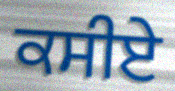
ਕਸੀਏ